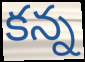
కన్న